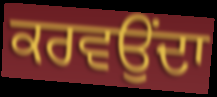
ਕਰਵਉਂਦਾ